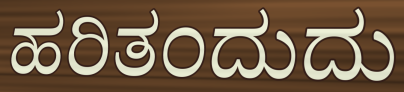
ಹರಿತಂದುದು